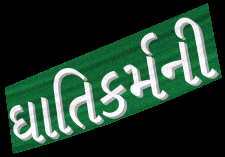
ઘાતિકર્મની